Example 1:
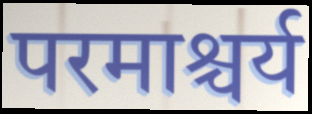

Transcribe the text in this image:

परमाश्चर्य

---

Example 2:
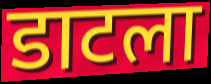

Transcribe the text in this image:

डाटला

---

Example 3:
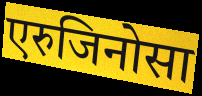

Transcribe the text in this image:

एरुजिनोसा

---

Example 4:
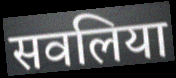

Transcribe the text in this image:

सवलिया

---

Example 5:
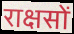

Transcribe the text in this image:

राक्षसों